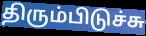
திரும்பிடுச்சு